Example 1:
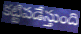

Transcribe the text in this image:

కట్టిపడేస్తుంది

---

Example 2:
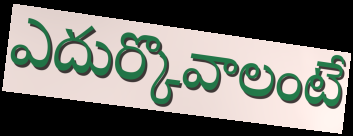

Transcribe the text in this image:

ఎదుర్కొవాలంటే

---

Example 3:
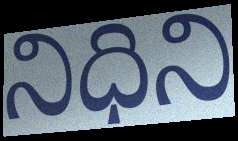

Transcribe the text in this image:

నిధిని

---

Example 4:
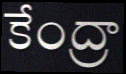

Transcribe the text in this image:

కేంద్రా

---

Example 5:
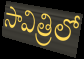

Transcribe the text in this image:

సావిత్రిలో